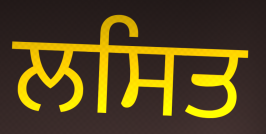
ਲਸਿਤ